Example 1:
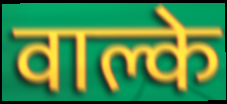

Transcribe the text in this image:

वाल्के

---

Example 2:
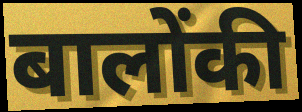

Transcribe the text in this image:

बालोंकी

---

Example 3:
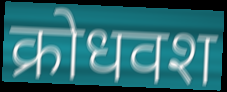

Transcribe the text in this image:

क्रोधवश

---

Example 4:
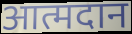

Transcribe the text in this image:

आत्मदान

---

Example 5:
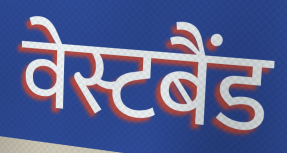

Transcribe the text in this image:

वेस्टबैंड